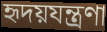
হৃদয়যন্ত্রণা